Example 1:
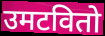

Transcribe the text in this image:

उमटवितो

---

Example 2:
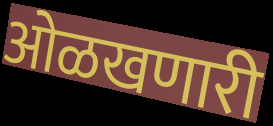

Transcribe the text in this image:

ओळखणारी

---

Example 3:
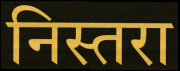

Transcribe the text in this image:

निस्तरा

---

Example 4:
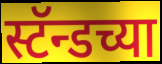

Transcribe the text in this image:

स्टॅन्डच्या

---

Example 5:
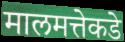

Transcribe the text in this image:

मालमत्तेकडे